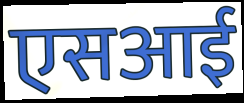
एसआई